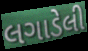
લગાડેલી